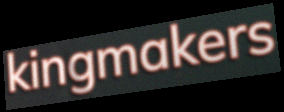
kingmakers